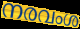
നരവംശ